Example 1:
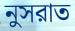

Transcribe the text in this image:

নুসরাত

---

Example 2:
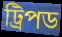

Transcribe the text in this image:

ট্রিপড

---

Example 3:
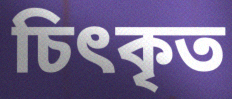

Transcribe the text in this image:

চিৎকৃত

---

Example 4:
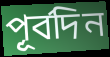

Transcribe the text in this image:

পূর্বদিন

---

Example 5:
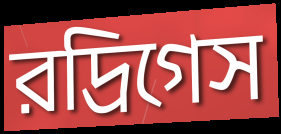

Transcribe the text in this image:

রদ্রিগেস